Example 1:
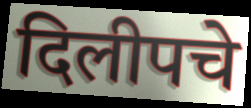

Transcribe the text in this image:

दिलीपचे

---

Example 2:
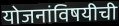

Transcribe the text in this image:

योजनांविषयीची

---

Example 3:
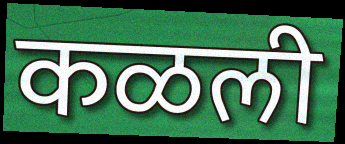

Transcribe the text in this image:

कळली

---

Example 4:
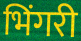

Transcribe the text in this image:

भिंगरी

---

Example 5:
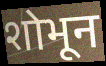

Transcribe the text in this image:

शोभून